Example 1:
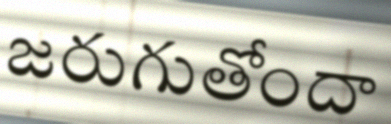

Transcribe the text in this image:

జరుగుతోందా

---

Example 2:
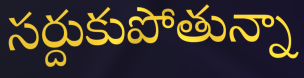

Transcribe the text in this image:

సర్దుకుపోతున్నా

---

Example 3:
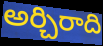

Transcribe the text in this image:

అర్చిరాది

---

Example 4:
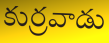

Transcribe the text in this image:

కుర్రవాడు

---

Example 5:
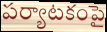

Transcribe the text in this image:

పర్యాటకంపై